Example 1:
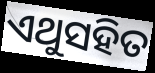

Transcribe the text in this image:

ଏଥୁସହିତ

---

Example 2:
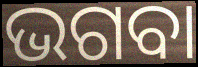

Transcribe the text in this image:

ଭଗବା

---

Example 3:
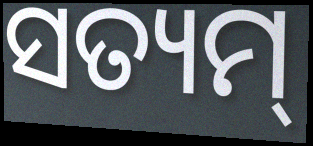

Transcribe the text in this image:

ସତ୍ୟମ୍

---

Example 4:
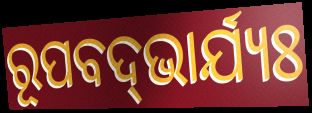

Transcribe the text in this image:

ରୂପବଦ୍‌ଭାର୍ଯ୍ୟଃ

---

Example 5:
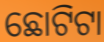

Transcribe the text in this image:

ଛୋଟିଟା